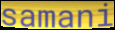
samani